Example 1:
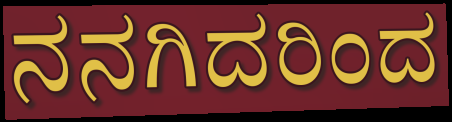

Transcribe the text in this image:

ನನಗಿದರಿಂದ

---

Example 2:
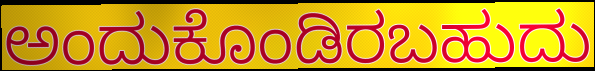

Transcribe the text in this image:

ಅಂದುಕೊಂಡಿರಬಹುದು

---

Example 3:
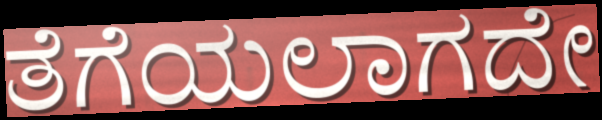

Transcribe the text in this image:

ತೆಗೆಯಲಾಗದೇ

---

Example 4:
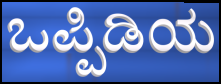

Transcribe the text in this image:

ಒಪ್ಪಿಡಿಯ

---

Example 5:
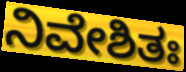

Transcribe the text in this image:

ನಿವೇಶಿತಃ